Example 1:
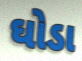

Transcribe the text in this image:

ઘોડા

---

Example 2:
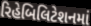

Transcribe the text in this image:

રિહેબિલિટેશનમાં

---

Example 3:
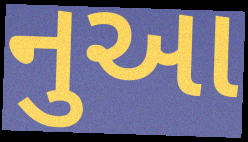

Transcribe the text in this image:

નુઆ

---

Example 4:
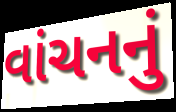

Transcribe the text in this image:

વાંચનનું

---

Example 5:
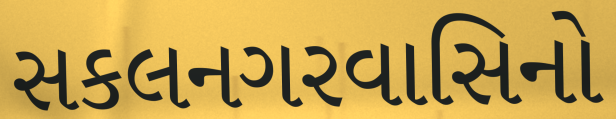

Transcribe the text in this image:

સકલનગરવાસિનો